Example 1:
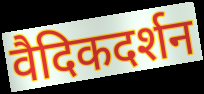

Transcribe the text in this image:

वैदिकदर्शन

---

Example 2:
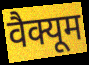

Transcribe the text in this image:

वैक्यूम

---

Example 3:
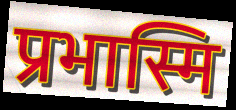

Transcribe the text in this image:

प्रभास्मि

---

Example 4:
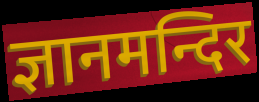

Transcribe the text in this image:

ज्ञानमन्दिर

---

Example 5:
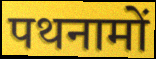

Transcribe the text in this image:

पथनामों